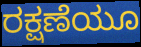
ರಕ್ಷಣೆಯೂ